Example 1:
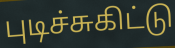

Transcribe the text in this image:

புடிச்சுகிட்டு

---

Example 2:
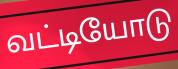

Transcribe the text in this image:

வட்டியோடு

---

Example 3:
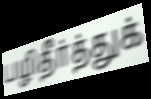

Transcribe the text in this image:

பழிதீர்த்துக்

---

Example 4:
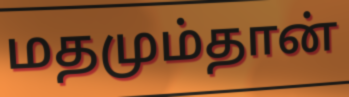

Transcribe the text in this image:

மதமும்தான்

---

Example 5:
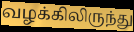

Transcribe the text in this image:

வழக்கிலிருந்து